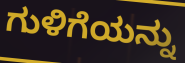
ಗುಳಿಗೆಯನ್ನು